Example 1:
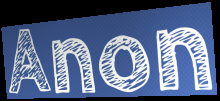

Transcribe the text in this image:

Anon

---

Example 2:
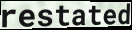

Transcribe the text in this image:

restated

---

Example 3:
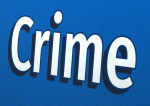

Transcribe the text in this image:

Crime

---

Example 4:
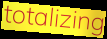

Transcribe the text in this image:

totalizing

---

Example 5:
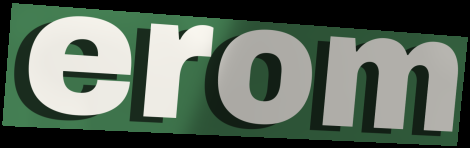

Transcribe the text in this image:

erom